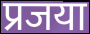
प्रजया